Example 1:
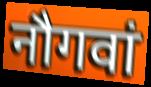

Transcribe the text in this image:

नौगवां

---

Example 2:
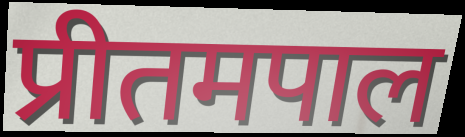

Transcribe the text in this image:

प्रीतमपाल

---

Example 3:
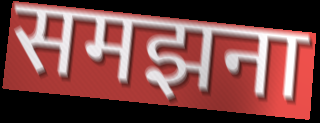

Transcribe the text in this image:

समझना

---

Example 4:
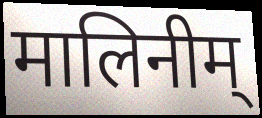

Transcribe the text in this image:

मालिनीम्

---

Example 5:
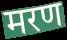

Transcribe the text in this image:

मरण